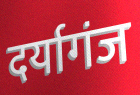
दर्यागंज